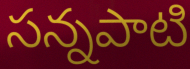
సన్నపాటి